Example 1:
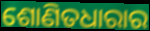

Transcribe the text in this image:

ଶୋଣିତଧାରାର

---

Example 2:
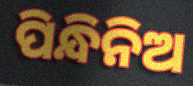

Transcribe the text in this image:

ପିନ୍ଧିନିଅ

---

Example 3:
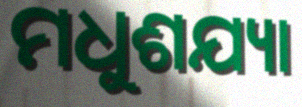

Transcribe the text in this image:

ମଧୁଶଯ୍ୟା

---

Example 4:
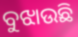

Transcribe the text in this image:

ବୁଝାଉଛି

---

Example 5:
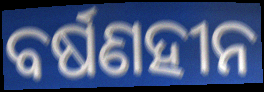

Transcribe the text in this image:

ବର୍ଷଣହୀନ